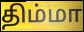
திம்மா